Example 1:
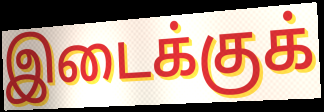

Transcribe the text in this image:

இடைக்குக்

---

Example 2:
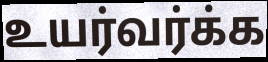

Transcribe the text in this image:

உயர்வர்க்க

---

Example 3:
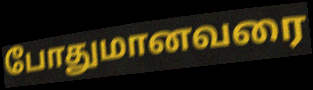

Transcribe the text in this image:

போதுமானவரை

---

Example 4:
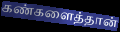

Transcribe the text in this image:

கண்களைத்தான்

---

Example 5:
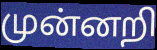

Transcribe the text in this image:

முன்னறி